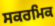
ਸਕਰਮਿਕ